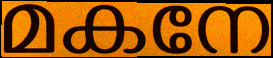
മകനേ